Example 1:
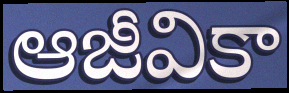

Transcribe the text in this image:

ఆజీవికా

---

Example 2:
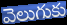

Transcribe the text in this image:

వెలుగుకు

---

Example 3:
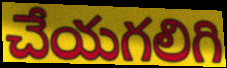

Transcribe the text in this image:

చేయగలిగి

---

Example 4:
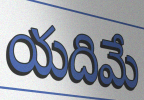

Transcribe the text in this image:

యదిమే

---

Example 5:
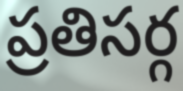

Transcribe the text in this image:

ప్రతిసర్గ